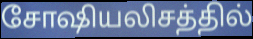
சோஷியலிசத்தில்